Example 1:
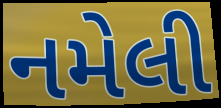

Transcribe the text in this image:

નમેલી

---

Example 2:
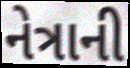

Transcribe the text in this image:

નેત્રાની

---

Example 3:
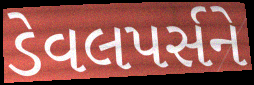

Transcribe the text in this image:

ડેવલપર્સને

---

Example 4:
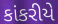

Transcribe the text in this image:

કાંકરીયે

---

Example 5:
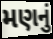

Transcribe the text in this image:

મણનું